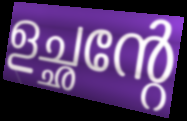
ളച്ഛന്റേ